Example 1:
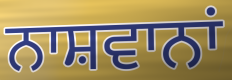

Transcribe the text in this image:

ਨਾਸ਼ਵਾਨਾਂ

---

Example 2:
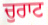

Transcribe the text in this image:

ਚੁਰਾਟ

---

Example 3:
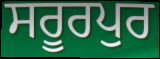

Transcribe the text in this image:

ਸਰੂਰਪੁਰ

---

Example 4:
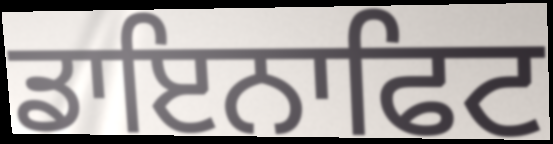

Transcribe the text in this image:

ਡਾਇਨਾਫਿਟ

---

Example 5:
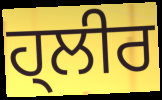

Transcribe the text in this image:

ਹ੍ਲੀਰ